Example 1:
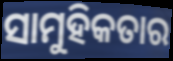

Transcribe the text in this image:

ସାମୁହିକତାର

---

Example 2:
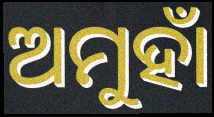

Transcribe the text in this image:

ଅମୁହାଁ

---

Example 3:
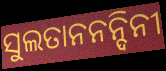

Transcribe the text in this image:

ସୁଲତାନନନ୍ଦିନୀ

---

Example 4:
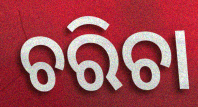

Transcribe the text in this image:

ଚରିଚା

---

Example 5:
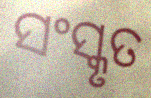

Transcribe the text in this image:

ସଂସ୍କୃତ